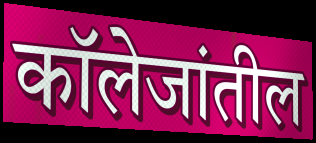
कॉलेजांतील